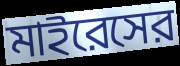
মাইরেসের